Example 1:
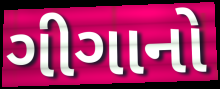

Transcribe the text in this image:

ગીગાનો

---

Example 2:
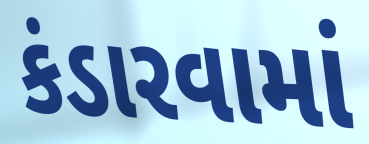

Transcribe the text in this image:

કંડારવામાં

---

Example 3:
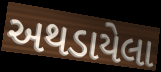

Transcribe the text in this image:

અથડાયેલા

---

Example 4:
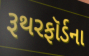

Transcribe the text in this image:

રૂથરફૉર્ડના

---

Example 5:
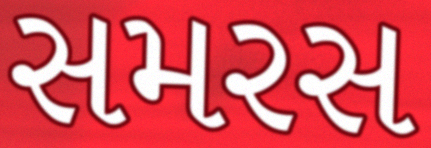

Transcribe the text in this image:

સમરસ